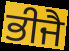
ਭੀਜੈ